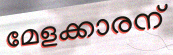
മേളക്കാരന്